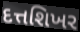
દત્તશિખર